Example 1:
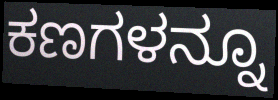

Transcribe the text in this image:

ಕಣಗಳನ್ನೂ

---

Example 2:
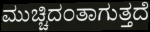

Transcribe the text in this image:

ಮುಚ್ಚಿದಂತಾಗುತ್ತದೆ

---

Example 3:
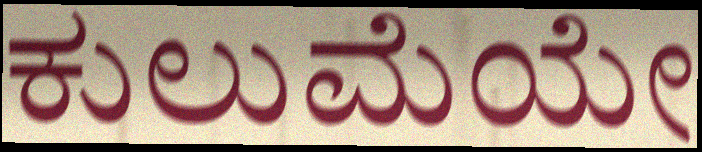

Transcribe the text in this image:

ಕುಲುಮೆಯೇ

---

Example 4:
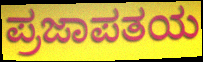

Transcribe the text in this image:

ಪ್ರಜಾಪತಯ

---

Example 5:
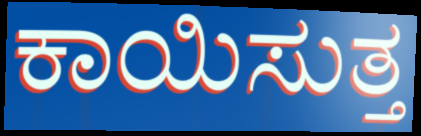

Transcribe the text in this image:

ಕಾಯಿಸುತ್ತ